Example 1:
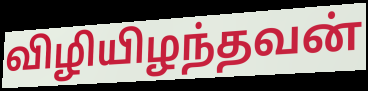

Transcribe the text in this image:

விழியிழந்தவன்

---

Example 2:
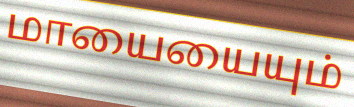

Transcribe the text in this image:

மாயையையும்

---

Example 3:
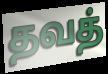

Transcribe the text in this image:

தவத்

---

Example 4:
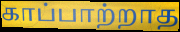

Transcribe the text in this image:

காப்பாற்றாத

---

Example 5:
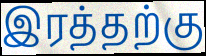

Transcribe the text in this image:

இரத்தற்கு